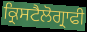
ਕ੍ਰਿਸਟੈਲੋਗ੍ਰਾਫੀ